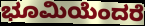
ಭೂಮಿಯೆಂದರೆ